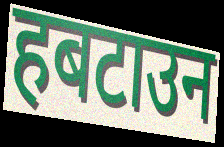
हबटाउन